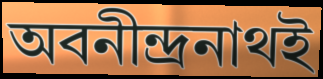
অবনীন্দ্রনাথই